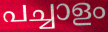
പച്ചാളം